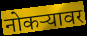
नोकऱ्यावर